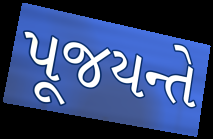
પૂજયન્તે